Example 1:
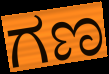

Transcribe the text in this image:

ಗಣ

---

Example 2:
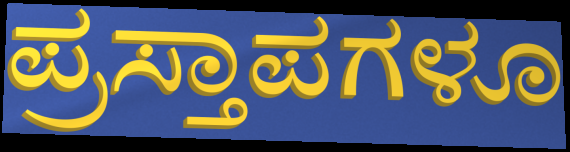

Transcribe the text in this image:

ಪ್ರಸ್ತಾಪಗಳೂ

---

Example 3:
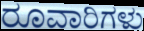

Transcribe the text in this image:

ರೂವಾರಿಗಳು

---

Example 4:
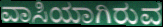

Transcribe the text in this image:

ವಾಸಿಯಾಗಿರುವ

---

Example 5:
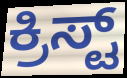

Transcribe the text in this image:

ಕ್ರಿಸ್ಟ್